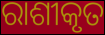
ରାଶୀକୃତ